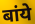
बांये